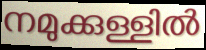
നമുക്കുള്ളിൽ